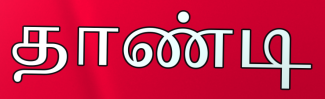
தாண்டி